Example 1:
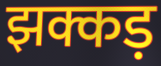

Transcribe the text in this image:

झक्कड़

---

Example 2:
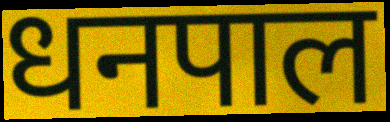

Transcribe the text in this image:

धनपाल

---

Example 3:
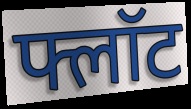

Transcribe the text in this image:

फ्लॉट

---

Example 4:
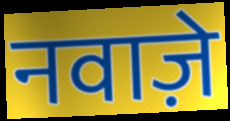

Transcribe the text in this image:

नवाज़े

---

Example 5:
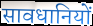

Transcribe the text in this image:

सावधानियों